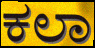
ಕಲಾ